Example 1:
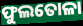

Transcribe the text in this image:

ଫୁଲତୋଳା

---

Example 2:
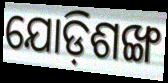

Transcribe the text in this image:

ଯୋଡ଼ିଶଙ୍ଖ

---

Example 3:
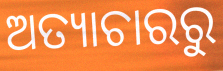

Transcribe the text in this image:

ଅତ୍ୟାଚାରରୁ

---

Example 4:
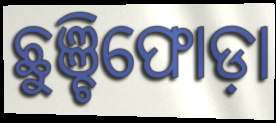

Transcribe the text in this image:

ଛୁଞ୍ଚିଫୋଡ଼ା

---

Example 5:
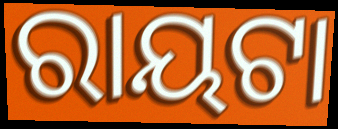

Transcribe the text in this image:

ରାୟଟା